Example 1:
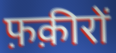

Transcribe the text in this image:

फ़क़ीरों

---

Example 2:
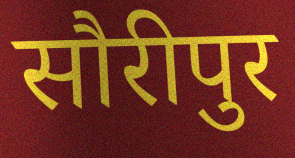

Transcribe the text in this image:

सौरीपुर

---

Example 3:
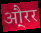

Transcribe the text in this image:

औ्रर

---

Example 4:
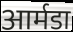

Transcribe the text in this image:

आर्मडा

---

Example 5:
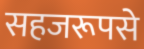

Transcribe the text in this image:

सहजरूपसे